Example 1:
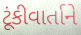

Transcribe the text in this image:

ટૂંકીવાર્તાને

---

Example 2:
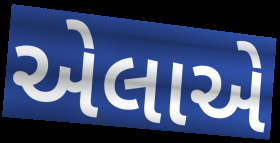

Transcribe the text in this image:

એલાએ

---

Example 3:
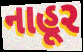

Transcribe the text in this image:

નાહૂર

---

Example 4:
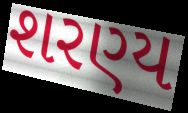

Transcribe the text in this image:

શરણ્ય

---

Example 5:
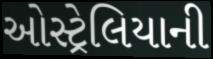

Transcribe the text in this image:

ઓસ્ટ્રેલિયાની